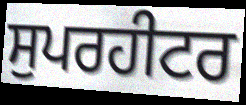
ਸੁਪਰਹੀਟਰ